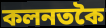
কলনতকৈ